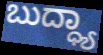
ಬುದ್ಧ್ಯಾ